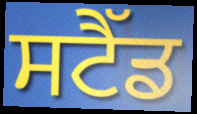
ਸਟੈੱਡ